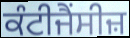
ਕੰਟੀਜੈਂਸੀਜ਼